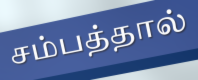
சம்பத்தால்